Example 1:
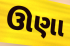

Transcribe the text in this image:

ઊણા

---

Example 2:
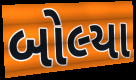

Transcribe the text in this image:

બોલ્યા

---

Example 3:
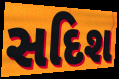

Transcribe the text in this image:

સદિશ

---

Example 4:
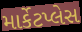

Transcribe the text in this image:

માર્કેટપ્લેસ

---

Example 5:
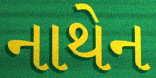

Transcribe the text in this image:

નાથેન